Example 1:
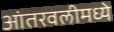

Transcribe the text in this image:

आंतरवलीमध्ये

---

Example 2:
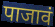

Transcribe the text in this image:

पाजावं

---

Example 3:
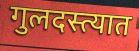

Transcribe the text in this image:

गुलदस्त्यात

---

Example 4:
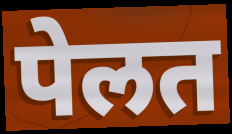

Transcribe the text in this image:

पेलत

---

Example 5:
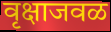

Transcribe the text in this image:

वृक्षाजवळ